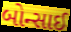
બોન્સાઈ